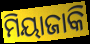
ମିୟାଜାକି